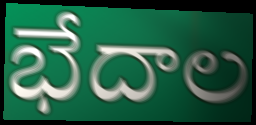
భేదాల